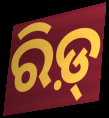
ରିଡ଼୍